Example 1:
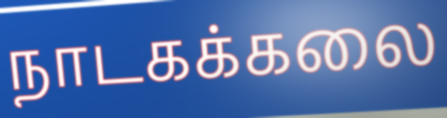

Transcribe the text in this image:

நாடகக்கலை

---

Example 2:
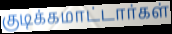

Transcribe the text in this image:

குடிக்கமாட்டார்கள்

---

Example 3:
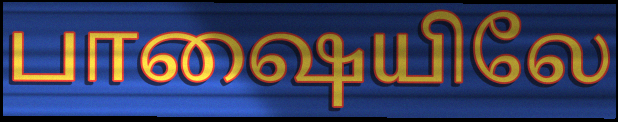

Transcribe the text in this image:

பாஷையிலே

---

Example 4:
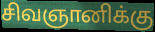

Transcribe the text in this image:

சிவஞானிக்கு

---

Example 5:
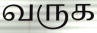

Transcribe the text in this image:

வருக